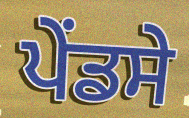
ਪੇਂਡਸੇ